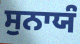
ਸੁਨਾਯੰ